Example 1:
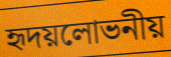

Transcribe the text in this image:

হৃদয়লোভনীয়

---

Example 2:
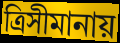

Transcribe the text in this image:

ত্রিসীমানায়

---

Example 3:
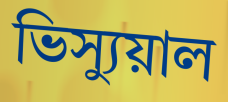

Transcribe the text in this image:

ভিস্যুয়াল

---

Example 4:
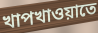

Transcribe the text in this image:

খাপখাওয়াতে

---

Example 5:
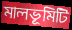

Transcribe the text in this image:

মালভূমিটি